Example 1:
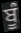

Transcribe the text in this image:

ਬੂੰ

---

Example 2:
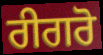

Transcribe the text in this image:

ਰੀਗਰੋ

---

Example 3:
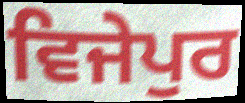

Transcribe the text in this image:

ਵਿਜੇਪੁਰ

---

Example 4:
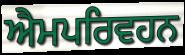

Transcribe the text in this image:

ਐਮਪਰਿਵਹਨ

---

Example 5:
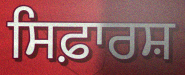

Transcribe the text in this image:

ਸਿਫ਼ਾਰਸ਼